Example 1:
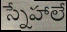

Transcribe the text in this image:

స్నేహాలే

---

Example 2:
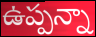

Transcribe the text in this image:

ఉప్పన్నా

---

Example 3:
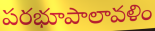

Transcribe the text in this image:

పరభూపాలావళిం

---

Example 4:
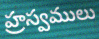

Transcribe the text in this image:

హ్రస్వములు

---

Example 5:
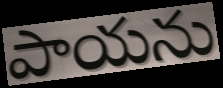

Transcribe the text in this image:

పాయను